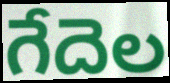
గేదెల